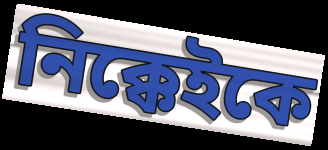
নিক্কেইকে